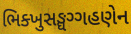
ભિક્ખુસઙ્ઘગ્ગહણેન